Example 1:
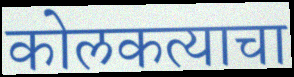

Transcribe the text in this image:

कोलकत्याचा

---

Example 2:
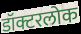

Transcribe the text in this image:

डॉक्टरलोक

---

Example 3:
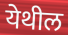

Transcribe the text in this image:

येथील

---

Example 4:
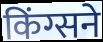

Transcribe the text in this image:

किंग्सने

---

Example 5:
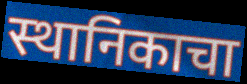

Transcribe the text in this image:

स्थानिकाचा